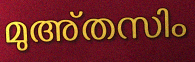
മുഅ്തസിം